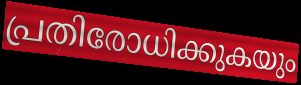
പ്രതിരോധിക്കുകയും